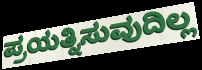
ಪ್ರಯತ್ನಿಸುವುದಿಲ್ಲ